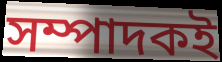
সম্পাদকই